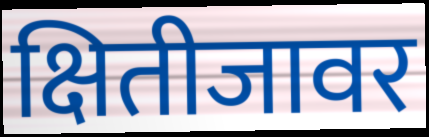
क्षितीजावर